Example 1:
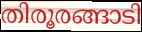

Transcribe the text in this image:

തിരൂരങ്ങാടി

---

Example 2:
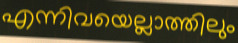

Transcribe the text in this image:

എന്നിവയെല്ലാത്തിലും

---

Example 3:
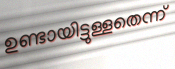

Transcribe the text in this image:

ഉണ്ടായിട്ടുള്ളതെന്ന്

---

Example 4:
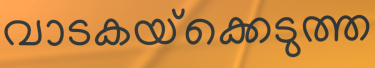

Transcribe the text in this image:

വാടകയ്‌ക്കെടുത്ത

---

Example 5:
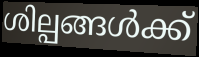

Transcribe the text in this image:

ശില്പങ്ങൾക്ക്